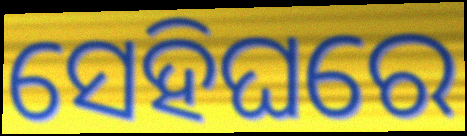
ସେହିଘରେ